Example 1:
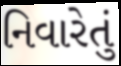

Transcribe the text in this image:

નિવારેતું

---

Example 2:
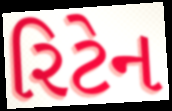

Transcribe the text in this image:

રિટેન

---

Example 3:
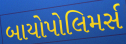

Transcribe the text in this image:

બાયોપોલિમર્સ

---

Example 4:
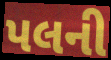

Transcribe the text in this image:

પલની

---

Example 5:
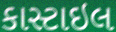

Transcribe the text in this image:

કાસ્ટાઇલ